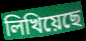
লিখিয়েছে